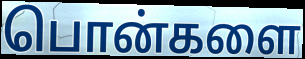
பொன்களை